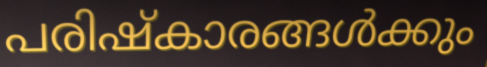
പരിഷ്കാരങ്ങൾക്കും